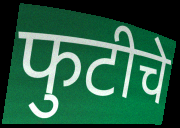
फुटीचे